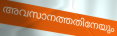
അവസാനത്തതിനേയും